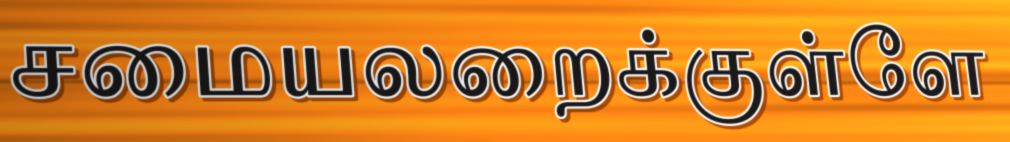
சமையலறைக்குள்ளே